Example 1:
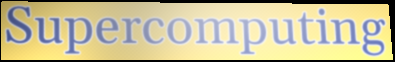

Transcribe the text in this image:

Supercomputing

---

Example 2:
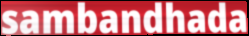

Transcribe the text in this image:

sambandhada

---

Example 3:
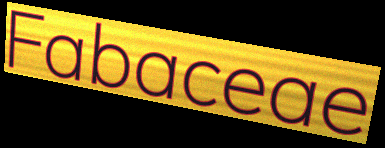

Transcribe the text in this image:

Fabaceae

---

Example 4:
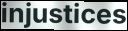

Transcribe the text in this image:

injustices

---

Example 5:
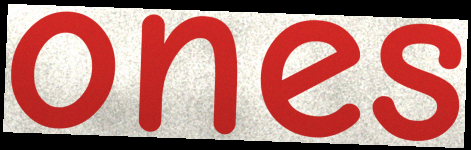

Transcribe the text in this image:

ones